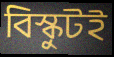
বিস্কুটই